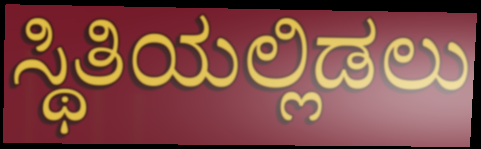
ಸ್ಥಿತಿಯಲ್ಲಿಡಲು